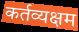
कर्तव्यक्षम